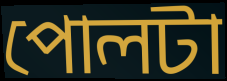
পোলটা